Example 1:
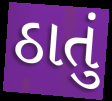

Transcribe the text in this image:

ઠાતું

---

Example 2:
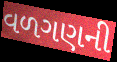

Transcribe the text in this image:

વળગણની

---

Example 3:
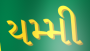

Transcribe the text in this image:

યમ્મી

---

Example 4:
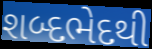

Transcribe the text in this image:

શબ્દભેદથી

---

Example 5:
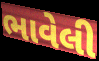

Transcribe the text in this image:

ભાવેલી